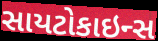
સાયટોકાઇન્સ